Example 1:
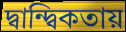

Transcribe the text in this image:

দ্বান্দ্বিকতায়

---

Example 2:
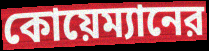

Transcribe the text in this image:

কোয়েম্যানের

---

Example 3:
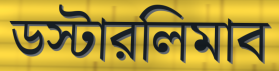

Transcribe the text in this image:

ডস্টারলিমাব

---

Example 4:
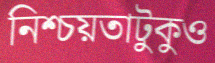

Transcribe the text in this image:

নিশ্চয়তাটুকুও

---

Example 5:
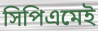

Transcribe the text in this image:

সিপিএমেই